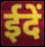
ईदें